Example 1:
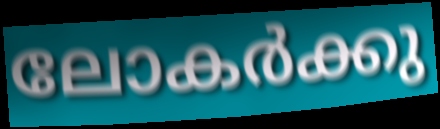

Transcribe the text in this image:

ലോകർക്കു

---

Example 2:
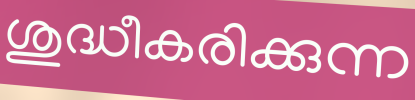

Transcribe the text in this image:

ശുദ്ധീകരിക്കുന്ന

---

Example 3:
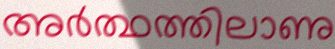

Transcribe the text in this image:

അർത്ഥത്തിലാണു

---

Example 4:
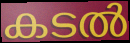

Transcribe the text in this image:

കടൽ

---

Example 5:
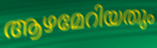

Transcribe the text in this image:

ആഴമേറിയതും